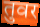
तुवर